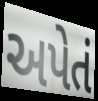
અપેતં